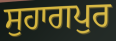
ਸੁਹਾਗਪੁਰ